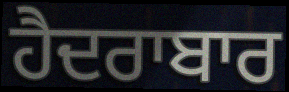
ਹੈਦਰਾਬਾਰ